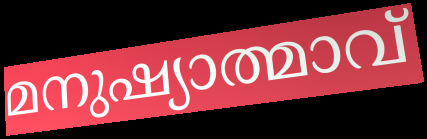
മനുഷ്യാത്മാവ്